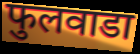
फुलवाडा